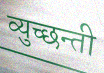
व्युच्छन्ती